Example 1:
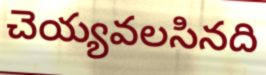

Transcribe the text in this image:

చెయ్యవలసినది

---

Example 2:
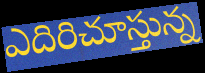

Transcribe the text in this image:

ఎదిరిచూస్తున్న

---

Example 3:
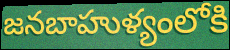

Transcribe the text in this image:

జనబాహుళ్యంలోకి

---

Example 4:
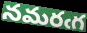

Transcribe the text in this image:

నమరఁగ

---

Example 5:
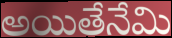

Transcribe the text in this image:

అయితేనేమి